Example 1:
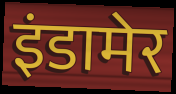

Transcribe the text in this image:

इंडामेर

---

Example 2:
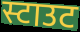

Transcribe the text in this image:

स्टाउट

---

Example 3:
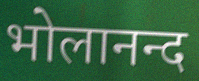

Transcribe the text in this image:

भोलानन्द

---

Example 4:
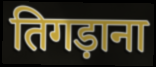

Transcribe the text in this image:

तिगड़ाना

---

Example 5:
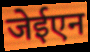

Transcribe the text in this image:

जेईएन